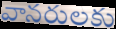
వానరులకు